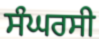
ਸੰਘਰਸੀ